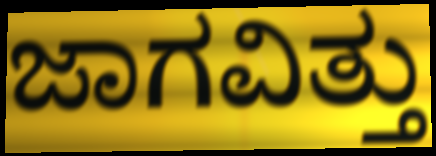
ಜಾಗವಿತ್ತು